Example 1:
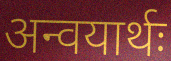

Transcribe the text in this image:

अन्वयार्थः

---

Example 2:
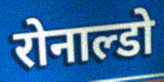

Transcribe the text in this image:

रोनाल्डो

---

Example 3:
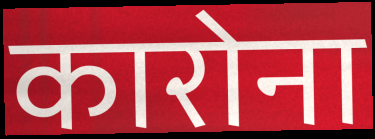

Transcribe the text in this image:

कारोना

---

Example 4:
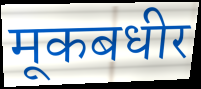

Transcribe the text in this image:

मूकबधीर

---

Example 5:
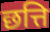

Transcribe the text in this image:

छत्ति